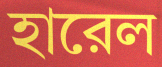
হারেল